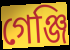
গেঞ্জি